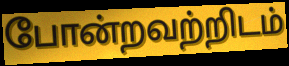
போன்றவற்றிடம்